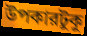
উপকারটুকু